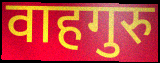
वाहगुरु